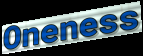
Oneness